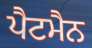
ਪੈਟਮੈਨ